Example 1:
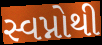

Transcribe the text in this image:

સ્વપ્નોથી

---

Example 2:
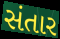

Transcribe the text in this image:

સંતાર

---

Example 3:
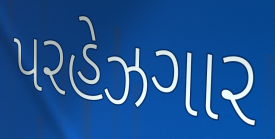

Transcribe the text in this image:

પરહેઝગાર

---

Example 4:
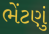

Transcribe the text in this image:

ભેંટણું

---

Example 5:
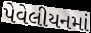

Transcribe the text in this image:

પેવેલીયનમાં